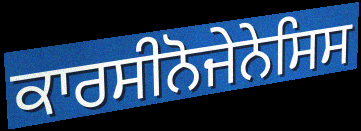
ਕਾਰਸੀਨੋਜੇਨੇਸਿਸ